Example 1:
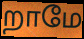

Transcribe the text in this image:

றாமே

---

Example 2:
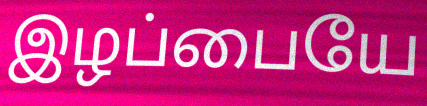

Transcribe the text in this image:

இழப்பையே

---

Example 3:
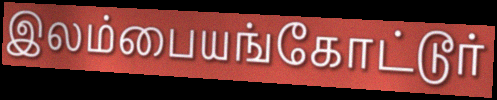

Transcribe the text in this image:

இலம்பையங்கோட்டூர்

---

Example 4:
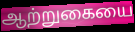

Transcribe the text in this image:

ஆற்றுகையை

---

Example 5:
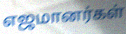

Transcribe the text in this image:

எஜமானர்கள்